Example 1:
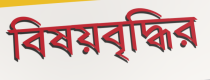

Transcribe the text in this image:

বিষয়বৃদ্ধির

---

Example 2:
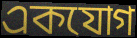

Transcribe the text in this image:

একযোগ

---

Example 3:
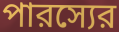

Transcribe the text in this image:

পারস্যের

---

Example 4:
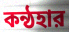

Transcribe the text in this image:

কন্ঠহার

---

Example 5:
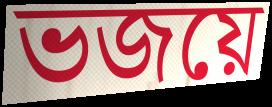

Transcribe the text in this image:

ভজয়ে